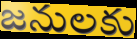
జనులకు